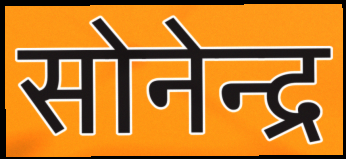
सोनेन्द्र